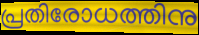
പ്രതിരോധത്തിനു